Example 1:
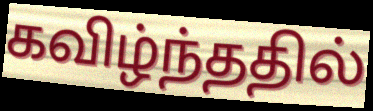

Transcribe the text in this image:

கவிழ்ந்ததில்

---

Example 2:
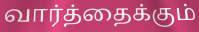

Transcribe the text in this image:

வார்த்தைக்கும்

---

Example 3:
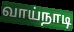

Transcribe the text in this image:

வாய்நாடி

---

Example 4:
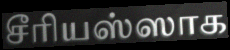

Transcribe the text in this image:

சீரியஸ்ஸாக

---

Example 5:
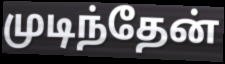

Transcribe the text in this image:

முடிந்தேன்